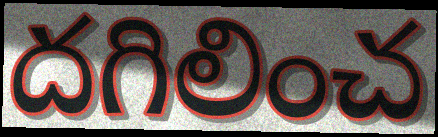
దగిలించ